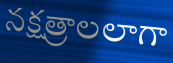
నక్షత్రాలలాగా